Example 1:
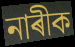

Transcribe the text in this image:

নাৰীক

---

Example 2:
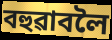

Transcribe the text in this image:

বহুৱাবলৈ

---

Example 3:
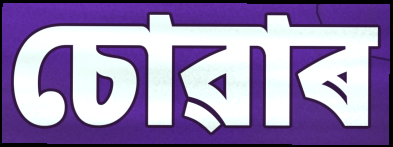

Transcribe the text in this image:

চোৱাৰ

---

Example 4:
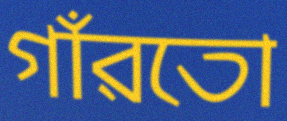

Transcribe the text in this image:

গাঁৱতো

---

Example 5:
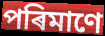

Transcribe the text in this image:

পৰিমাণে